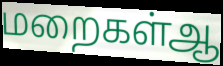
மறைகள்ஆ